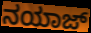
ನಯಾಜ್